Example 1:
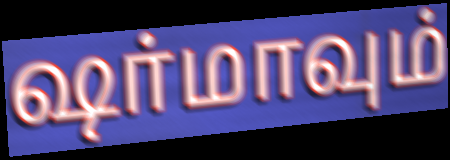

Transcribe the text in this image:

ஷர்மாவும்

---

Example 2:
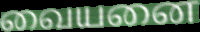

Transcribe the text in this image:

வையனை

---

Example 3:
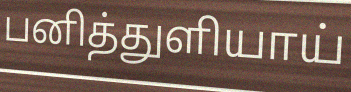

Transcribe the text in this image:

பனித்துளியாய்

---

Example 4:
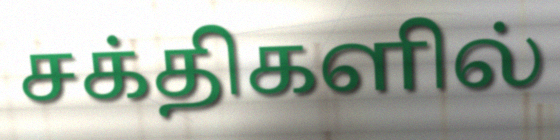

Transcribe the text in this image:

சக்திகளில்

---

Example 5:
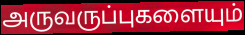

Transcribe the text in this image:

அருவருப்புகளையும்